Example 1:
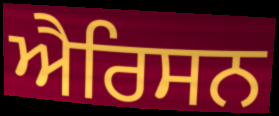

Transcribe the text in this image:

ਐਰਿਸਨ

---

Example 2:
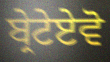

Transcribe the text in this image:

ਬ੍ਰੇਟੇਏਵੋ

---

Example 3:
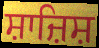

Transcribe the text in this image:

ਸ਼ਾਜ਼ਿਸ਼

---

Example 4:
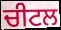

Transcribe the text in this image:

ਚੀਟਲ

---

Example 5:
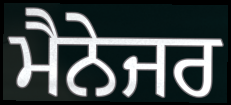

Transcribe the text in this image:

ਮੈਨੇਜਰ